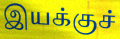
இயக்குச்